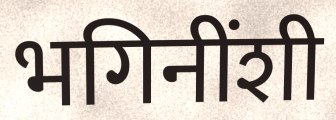
भगिनींशी